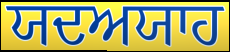
ਯਦਅਯਾਹ